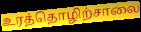
உரத்தொழிற்சாலை